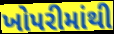
ખોપરીમાંથી